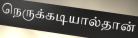
நெருக்கடியால்தான்